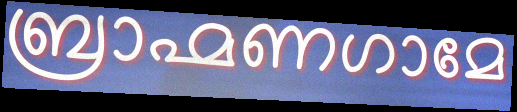
ബ്രാഹ്മണഗാമേ